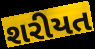
શરીયત